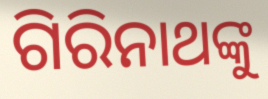
ଗିରିନାଥଙ୍କୁ